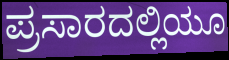
ಪ್ರಸಾರದಲ್ಲಿಯೂ